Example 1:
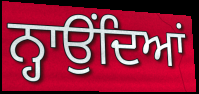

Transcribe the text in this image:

ਨ੍ਹਾਉਂਦਿਆਂ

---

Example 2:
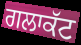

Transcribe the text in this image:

ਗਲਾਕੱਟ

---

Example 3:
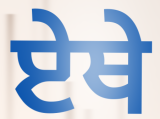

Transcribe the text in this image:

ਏਥੇ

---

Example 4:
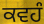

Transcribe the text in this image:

ਕਵਹੰ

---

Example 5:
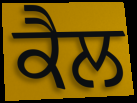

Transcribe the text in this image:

ਕੈਲ